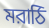
মরাঠি